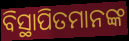
ବିସ୍ଥାପିତମାନଙ୍କ